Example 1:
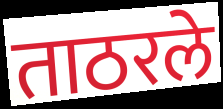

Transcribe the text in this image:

ताठरले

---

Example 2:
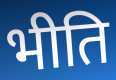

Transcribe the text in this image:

भीति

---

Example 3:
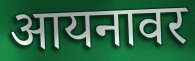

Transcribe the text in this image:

आयनावर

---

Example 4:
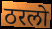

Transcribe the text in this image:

ठरलो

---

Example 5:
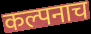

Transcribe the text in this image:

कल्पनाच